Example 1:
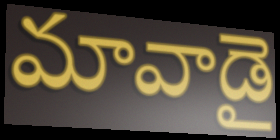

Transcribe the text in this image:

మావాడై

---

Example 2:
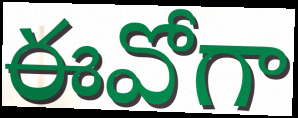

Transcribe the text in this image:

ఈవోగా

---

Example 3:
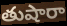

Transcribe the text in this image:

తుషారా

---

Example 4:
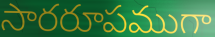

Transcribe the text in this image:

సారరూపముగా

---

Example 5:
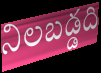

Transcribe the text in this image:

నిలబడ్డది